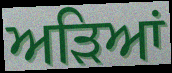
ਅੜਿਆਂ